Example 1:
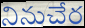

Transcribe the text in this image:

నినుచేర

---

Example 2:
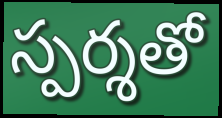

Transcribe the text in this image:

స్పర్శతో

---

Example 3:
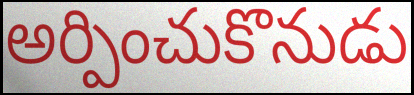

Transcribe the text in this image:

అర్పించుకొనుడు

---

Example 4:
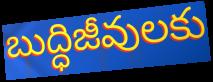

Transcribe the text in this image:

బుద్ధిజీవులకు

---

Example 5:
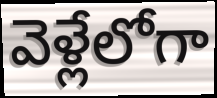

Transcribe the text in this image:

వెళ్లేలోగా